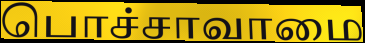
பொச்சாவாமை